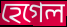
হেগেল